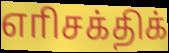
எரிசக்திக்